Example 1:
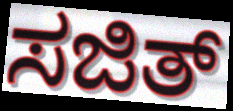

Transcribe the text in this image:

ಸಜಿತ್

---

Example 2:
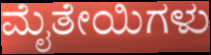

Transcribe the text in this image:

ಮೈತೇಯಿಗಳು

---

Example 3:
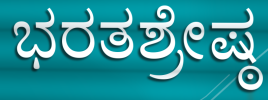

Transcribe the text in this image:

ಭರತಶ್ರೇಷ್ಠ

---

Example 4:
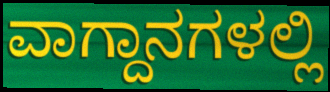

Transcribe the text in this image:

ವಾಗ್ದಾನಗಳಲ್ಲಿ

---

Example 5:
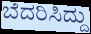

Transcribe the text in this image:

ಬೆದರಿಸಿದ್ದು